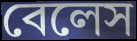
বেলেস